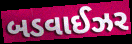
બડવાઈઝર